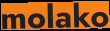
molako